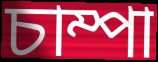
চাম্পা